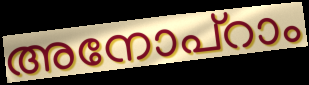
അനോപ്റാം